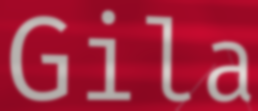
Gila